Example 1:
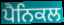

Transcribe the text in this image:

ਪੈਨਿਕਲ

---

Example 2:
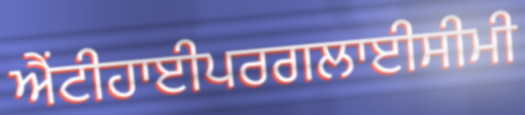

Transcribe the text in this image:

ਐਂਟੀਹਾਈਪਰਗਲਾਈਸੀਮੀ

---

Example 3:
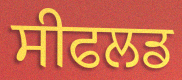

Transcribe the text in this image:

ਸੀਫਲਡ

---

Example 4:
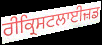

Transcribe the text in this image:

ਰੀਕ੍ਰਿਸਟਲਾਈਜ਼ਡ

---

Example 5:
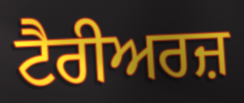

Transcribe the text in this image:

ਟੈਰੀਅਰਜ਼